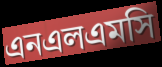
এনএলএমসি